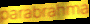
parabrahma